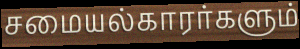
சமையல்காரர்களும்